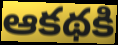
ఆకథకి